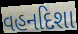
વહનદિશા